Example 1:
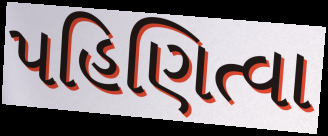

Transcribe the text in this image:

પહિણિત્વા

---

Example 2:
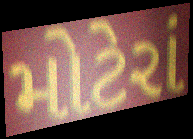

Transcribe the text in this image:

મોટેરાં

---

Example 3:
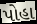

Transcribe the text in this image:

પોહા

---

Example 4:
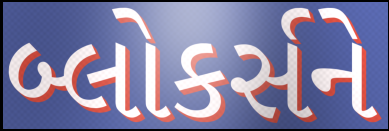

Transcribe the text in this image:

બ્લોકર્સને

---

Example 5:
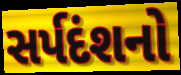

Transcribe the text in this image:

સર્પદંશનો